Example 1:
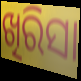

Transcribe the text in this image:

ଖିରିସା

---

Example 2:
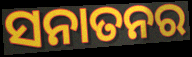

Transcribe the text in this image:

ସନାତନର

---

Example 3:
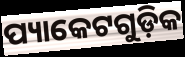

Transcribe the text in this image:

ପ୍ୟାକେଟଗୁଡ଼ିକ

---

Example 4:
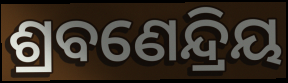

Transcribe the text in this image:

ଶ୍ରବଣେନ୍ଦ୍ରିୟ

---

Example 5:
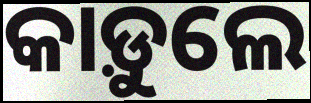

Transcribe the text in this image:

କାଡ଼ୁଲେ